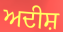
ਅਦੀਸ਼